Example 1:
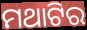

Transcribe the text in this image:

ମଥାଟିର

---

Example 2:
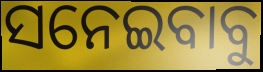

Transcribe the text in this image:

ସନେଇବାବୁ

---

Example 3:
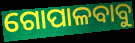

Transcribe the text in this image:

ଗୋପାଳବାବୁ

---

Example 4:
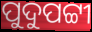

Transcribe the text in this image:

ପୁଦୁପଟ୍ଟୀ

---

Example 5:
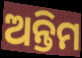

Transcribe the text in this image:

ଅନ୍ତିମ